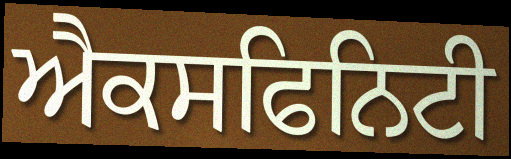
ਐਕਸਫਿਨਿਟੀ